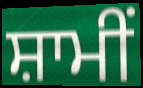
ਸ਼ਾਮੀਂ